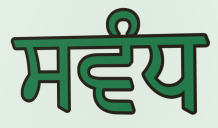
ਸਵੰਧ